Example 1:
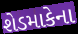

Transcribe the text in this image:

શેડમાકેના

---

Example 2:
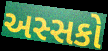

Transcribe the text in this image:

અસ્સકો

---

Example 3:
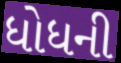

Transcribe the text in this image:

ધોધની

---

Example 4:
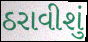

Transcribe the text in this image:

ઠરાવીશું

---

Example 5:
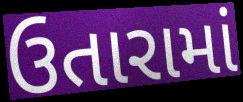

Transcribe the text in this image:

ઉતારામાં